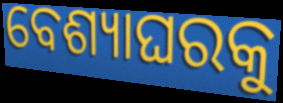
ବେଶ୍ୟାଘରକୁ